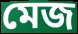
মেজ